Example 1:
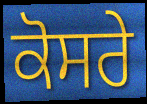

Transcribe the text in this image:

ਕੋਸਰੇ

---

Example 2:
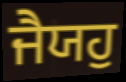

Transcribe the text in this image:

ਜੈਯਹੁ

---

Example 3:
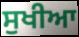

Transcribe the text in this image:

ਸੁਖੀਆ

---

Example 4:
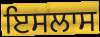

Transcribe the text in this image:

ਇਸਲਾਸ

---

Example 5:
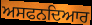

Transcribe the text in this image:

ਅਸਫਨਦਿਆਰ